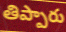
తిప్పారు